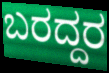
ಬರದ್ದರ